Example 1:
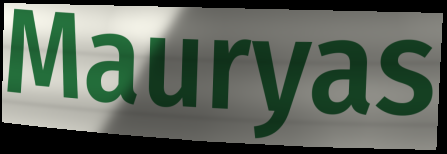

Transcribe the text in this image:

Mauryas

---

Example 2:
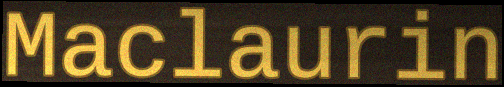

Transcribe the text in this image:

Maclaurin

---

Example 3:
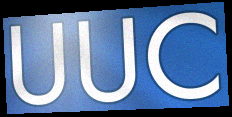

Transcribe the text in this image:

UUC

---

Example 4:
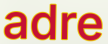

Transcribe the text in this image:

adre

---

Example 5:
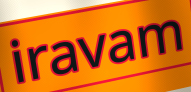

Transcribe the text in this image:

iravam